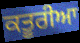
ਕਤੂਰੀਆ